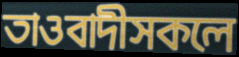
তাওবাদীসকলে